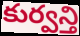
కుర్వన్తి